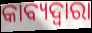
କାବ୍ୟଦ୍ୱାରା